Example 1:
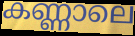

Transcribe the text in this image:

കണ്ണാലെ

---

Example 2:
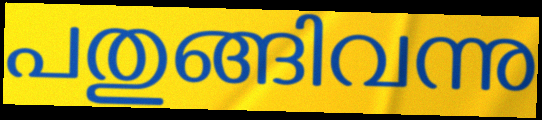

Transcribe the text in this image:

പതുങ്ങിവന്നു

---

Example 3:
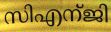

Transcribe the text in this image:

സിഎന്ജി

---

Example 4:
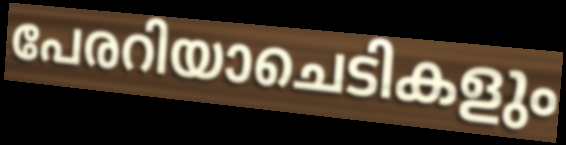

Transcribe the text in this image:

പേരറിയാചെടികളും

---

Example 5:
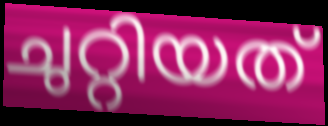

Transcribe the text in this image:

ചുറ്റിയത്